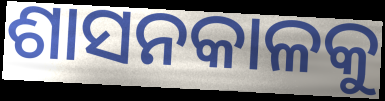
ଶାସନକାଳକୁ